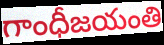
గాంధీజయంతి